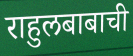
राहुलबाबाची